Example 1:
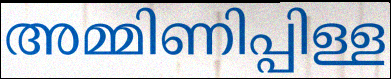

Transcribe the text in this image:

അമ്മിണിപ്പിള്ള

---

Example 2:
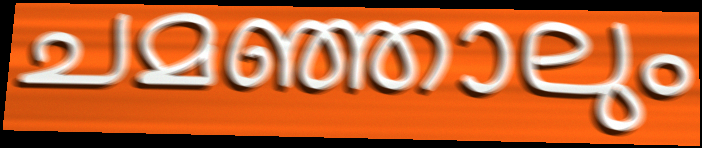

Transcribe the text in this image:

ചമഞ്ഞാലും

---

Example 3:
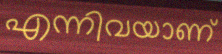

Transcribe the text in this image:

എന്നിവയാണ്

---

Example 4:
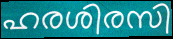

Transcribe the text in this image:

ഹരശിരസി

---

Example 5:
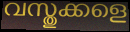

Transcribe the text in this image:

വസ്തുക്കളെ